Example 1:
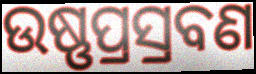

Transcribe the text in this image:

ଉଷ୍ଣପ୍ରସ୍ରବଣ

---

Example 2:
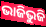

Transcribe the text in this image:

ଭାଜିଭୁଜି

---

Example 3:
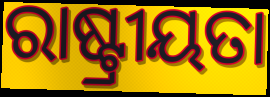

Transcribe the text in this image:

ରାଷ୍ଟ୍ରୀୟତା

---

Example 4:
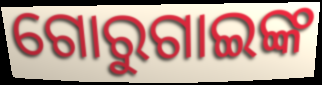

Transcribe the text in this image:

ଗୋରୁଗାଇଙ୍କ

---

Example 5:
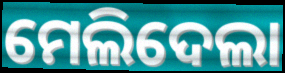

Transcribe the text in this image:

ମେଲିଦେଲା